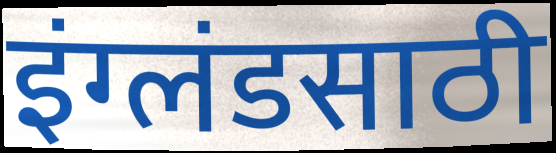
इंग्लंडसाठी